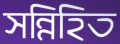
সন্নিহিত